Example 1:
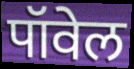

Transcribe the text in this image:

पॉवेल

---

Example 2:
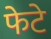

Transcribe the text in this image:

फेटे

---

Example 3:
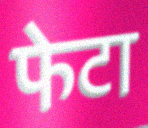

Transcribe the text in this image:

फेटा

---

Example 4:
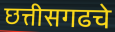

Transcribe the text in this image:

छत्तीसगढचे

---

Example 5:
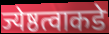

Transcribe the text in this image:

ज्येष्ठत्वाकडे